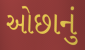
ઓછાનું